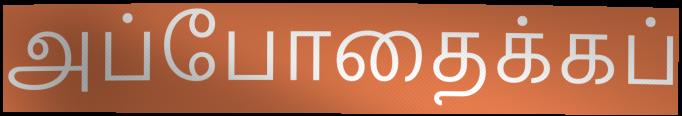
அப்போதைக்கப்